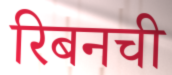
रिबनची